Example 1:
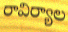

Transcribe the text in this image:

రావిర్యాల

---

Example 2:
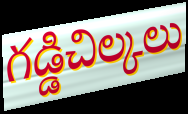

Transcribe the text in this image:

గడ్డిచిల్కలు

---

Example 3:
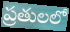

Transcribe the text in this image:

ప్రతులలో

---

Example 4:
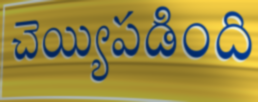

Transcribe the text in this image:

చెయ్యిపడింది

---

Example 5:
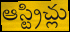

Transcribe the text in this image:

ఆస్ట్రిచ్లు